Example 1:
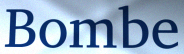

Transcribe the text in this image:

Bombe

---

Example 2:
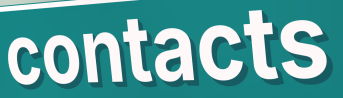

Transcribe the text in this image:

contacts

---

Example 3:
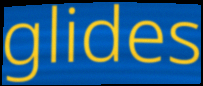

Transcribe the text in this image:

glides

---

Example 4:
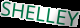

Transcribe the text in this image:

SHELLEY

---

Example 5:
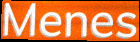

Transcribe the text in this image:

Menes